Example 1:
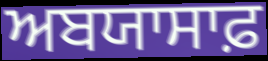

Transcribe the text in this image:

ਅਬਯਾਸਾਫ਼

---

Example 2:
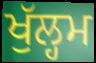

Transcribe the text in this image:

ਖੁੱਲ੍ਹਮ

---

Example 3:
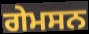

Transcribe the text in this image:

ਗੇਮਸਨ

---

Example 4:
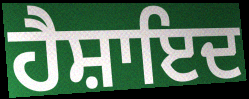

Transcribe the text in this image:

ਹੈਸ਼ਾਇਦ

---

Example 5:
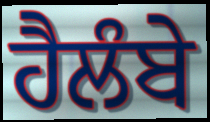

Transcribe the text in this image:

ਹੈਲੰਬੇ